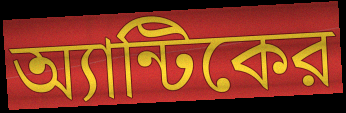
অ্যান্টিকের